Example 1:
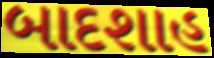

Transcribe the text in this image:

બાદશાહ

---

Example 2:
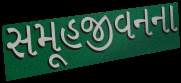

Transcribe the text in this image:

સમૂહજીવનના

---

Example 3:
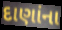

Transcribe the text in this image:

દાણાંના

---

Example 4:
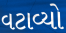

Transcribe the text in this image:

વટાવ્યો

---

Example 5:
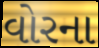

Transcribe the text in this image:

વોરના